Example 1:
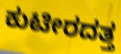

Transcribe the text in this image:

ಕುಟೀರದತ್ತ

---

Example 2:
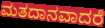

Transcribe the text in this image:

ಮತದಾನವಾದರೆ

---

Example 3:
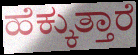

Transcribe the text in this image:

ಹೆಕ್ಕುತ್ತಾರೆ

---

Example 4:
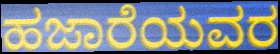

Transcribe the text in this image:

ಹಜಾರೆಯವರ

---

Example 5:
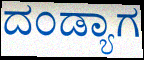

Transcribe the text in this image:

ದಂಡ್ಯಾಗ